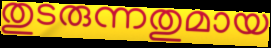
തുടരുന്നതുമായ